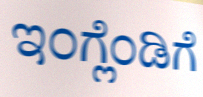
ಇಂಗ್ಲೆಂಡಿಗೆ